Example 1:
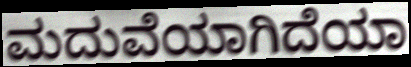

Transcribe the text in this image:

ಮದುವೆಯಾಗಿದೆಯಾ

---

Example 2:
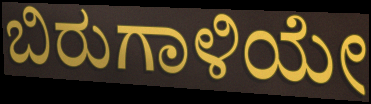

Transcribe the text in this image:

ಬಿರುಗಾಳಿಯೇ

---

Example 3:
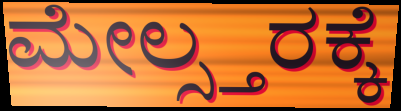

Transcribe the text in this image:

ಮೇಲ್ಸ್ತರಕ್ಕೆ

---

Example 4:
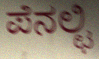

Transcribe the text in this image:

ಪೆನಲ್ಟಿ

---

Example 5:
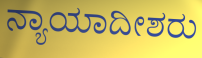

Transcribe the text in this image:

ನ್ಯಾಯಾದೀಶರು